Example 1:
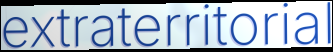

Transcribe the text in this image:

extraterritorial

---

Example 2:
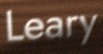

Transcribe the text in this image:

Leary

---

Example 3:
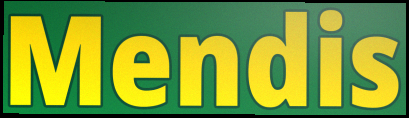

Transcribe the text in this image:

Mendis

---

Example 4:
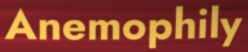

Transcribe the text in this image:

Anemophily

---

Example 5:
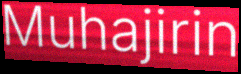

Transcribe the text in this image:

Muhajirin